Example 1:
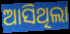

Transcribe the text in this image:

ଆସିଥିଲା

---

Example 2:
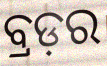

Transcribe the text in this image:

ବ୍ରଡ଼ର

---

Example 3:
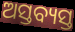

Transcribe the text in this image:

ଅସ୍ତବ୍ୟସ୍ତ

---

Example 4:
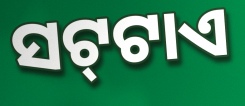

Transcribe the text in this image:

ସଟ୍‍ଟାଏ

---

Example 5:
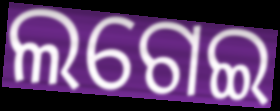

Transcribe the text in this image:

ଲଗେଇ